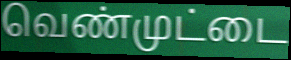
வெண்முட்டை